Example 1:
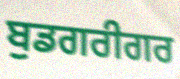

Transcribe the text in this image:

ਬੁਡਗਰੀਗਰ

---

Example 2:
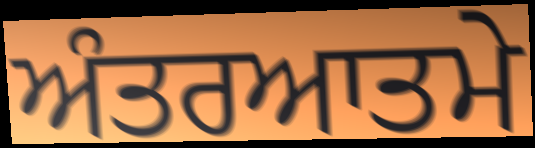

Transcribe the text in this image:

ਅੰਤਰਆਤਮੇ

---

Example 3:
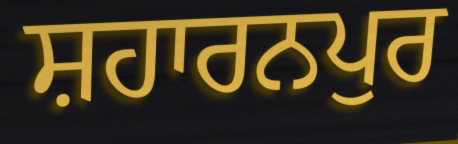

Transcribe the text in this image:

ਸ਼ਹਾਰਨਪੁਰ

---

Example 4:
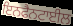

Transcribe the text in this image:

ਇਨਫੈਨਟਾਈਲ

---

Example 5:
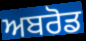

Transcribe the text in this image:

ਅਬਰੋਡ